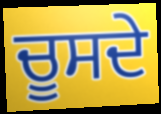
ਚੂਸਦੇ